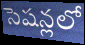
సెషన్లలో